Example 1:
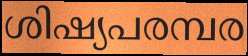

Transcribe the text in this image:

ശിഷ്യപരമ്പര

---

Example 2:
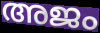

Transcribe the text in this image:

അജം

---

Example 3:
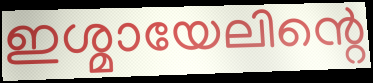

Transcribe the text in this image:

ഇശ്മായേലിന്റെ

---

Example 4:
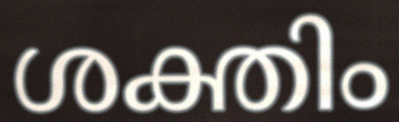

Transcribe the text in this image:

ശക്തിം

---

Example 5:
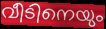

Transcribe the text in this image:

വീടിനെയും